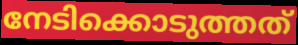
നേടിക്കൊടുത്തത്